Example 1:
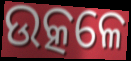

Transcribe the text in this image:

ଉତ୍କଳେ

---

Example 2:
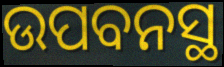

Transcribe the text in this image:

ଉପବନସ୍ଥ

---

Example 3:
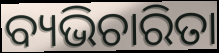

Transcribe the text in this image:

ବ୍ୟଭିଚାରିତା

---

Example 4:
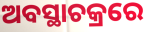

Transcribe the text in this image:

ଅବସ୍ଥାଚକ୍ରରେ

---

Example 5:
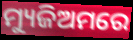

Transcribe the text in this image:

ମ୍ୟୁଜିଅମରେ